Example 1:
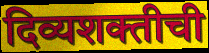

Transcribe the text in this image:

दिव्यशक्तीची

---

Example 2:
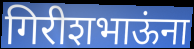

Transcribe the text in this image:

गिरीशभाऊंना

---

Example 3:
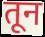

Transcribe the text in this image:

तून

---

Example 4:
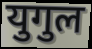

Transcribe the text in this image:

युगुल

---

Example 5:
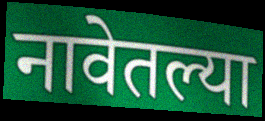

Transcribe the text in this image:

नावेतल्या